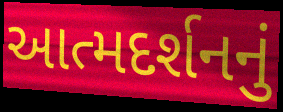
આત્મદર્શનનું